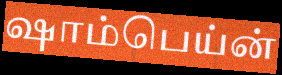
ஷாம்பெய்ன்